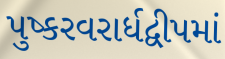
પુષ્કરવરાર્ધદ્વીપમાં